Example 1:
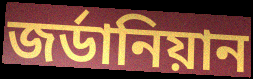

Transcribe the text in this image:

জর্ডানিয়ান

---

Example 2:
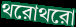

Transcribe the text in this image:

থরোথরো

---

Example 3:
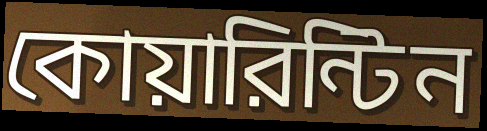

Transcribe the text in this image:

কোয়ারিন্টিন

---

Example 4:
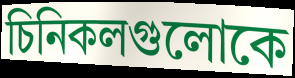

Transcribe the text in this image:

চিনিকলগুলোকে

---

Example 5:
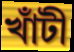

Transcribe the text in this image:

খাঁটী